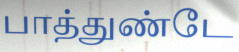
பாத்துண்டே